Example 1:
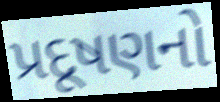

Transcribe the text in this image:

પ્રદૂષણનો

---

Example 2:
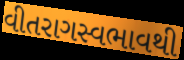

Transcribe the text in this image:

વીતરાગસ્વભાવથી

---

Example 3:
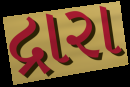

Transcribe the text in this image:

દ્રારા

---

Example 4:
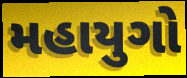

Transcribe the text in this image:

મહાયુગો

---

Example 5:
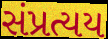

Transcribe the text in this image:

સંપ્રત્યય